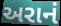
અરાનં